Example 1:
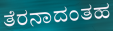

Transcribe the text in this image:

ತೆರನಾದಂತಹ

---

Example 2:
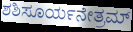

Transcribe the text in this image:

ಶಶಿಸೂರ್ಯನೇತ್ರಮ್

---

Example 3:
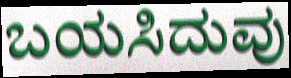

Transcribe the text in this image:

ಬಯಸಿದುವು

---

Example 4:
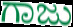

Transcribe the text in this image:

ಗಾಜು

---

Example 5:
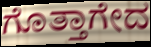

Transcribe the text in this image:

ಗೊತ್ತಾಗೇದ